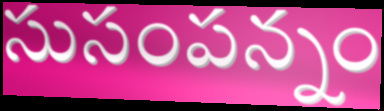
సుసంపన్నం